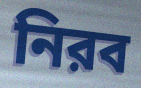
নিরব